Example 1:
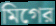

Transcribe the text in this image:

মিগের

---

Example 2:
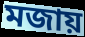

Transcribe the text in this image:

মজায়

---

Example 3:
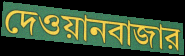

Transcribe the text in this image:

দেওয়ানবাজার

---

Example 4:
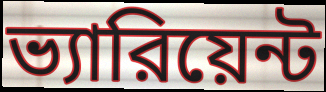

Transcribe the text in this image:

ভ্যারিয়েন্ট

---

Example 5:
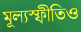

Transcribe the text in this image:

মূল্যস্ফীতিও